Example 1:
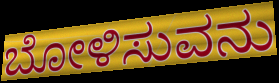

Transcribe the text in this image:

ಬೋಳಿಸುವನು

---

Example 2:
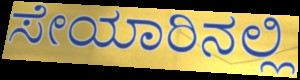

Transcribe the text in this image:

ಸೇಯಾರಿನಲ್ಲಿ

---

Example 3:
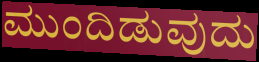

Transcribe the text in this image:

ಮುಂದಿಡುವುದು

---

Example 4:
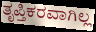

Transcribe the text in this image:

ತೃಪ್ತಿಕರವಾಗಿಲ್ಲ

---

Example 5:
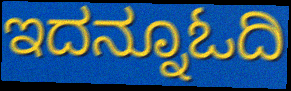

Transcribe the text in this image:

ಇದನ್ನೂಓದಿ